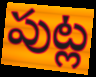
పుట్ల